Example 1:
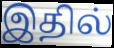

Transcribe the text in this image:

இதில்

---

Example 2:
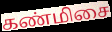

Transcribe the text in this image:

கண்மிசை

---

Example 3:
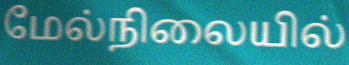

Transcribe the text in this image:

மேல்நிலையில்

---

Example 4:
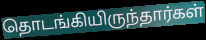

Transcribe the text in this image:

தொடங்கியிருந்தார்கள்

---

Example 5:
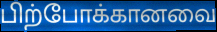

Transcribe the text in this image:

பிற்போக்கானவை